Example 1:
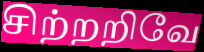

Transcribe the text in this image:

சிற்றறிவே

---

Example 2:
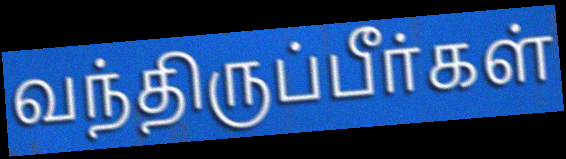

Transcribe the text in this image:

வந்திருப்பீர்கள்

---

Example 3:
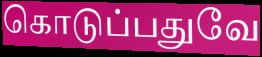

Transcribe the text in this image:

கொடுப்பதுவே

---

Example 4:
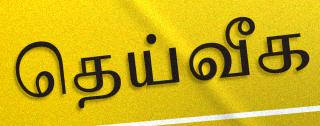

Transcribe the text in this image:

தெய்வீக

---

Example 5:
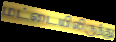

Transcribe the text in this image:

மட்டையிலிருந்து